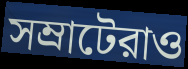
সম্রাটেরাও